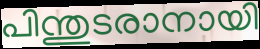
പിന്തുടരാനായി